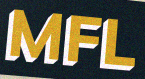
MFL